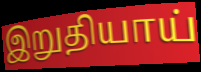
இறுதியாய்